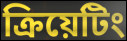
ক্রিয়েটিং